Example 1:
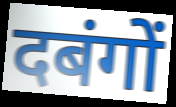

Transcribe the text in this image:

दबंगों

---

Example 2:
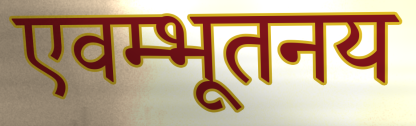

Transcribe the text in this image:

एवम्भूतनय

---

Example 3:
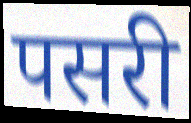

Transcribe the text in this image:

पसरी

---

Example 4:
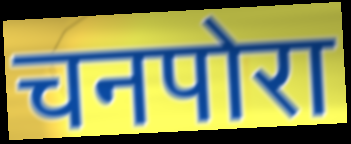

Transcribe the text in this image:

चनपोरा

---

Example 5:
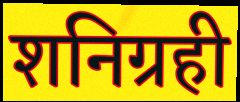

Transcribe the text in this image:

शनिग्रही